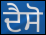
ਦੈਸੋ